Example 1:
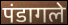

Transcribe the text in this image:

पंडागले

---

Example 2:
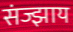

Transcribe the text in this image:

संज्झाय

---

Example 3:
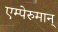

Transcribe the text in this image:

एम्पेरुमान्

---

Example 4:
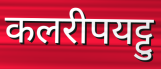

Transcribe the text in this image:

कलरीपयट्टु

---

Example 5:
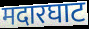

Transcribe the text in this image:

मदारघाट